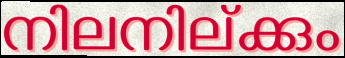
നിലനില്ക്കും